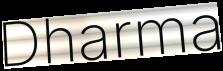
Dharma